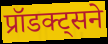
प्रॉडक्ट्सने